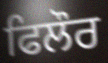
ਫਿਲੌਰ